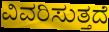
ವಿವರಿಸುತ್ತದೆ